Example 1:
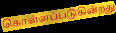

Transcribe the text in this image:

கொள்ளப்படுகின்றது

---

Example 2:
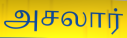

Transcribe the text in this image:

அசலார்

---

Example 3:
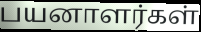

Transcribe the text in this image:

பயனாளர்கள்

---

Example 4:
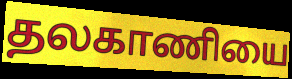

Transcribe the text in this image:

தலகாணியை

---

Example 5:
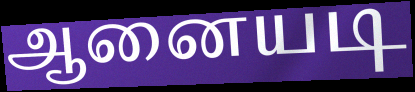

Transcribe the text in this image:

ஆனையடி